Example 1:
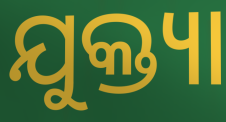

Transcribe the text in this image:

ଯୁକ୍ତ୍ୟା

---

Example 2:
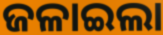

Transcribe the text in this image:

ଜଳାଇଲା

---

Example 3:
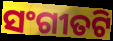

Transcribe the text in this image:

ସଂଗୀତଟି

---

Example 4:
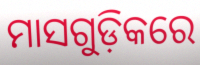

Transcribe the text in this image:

ମାସଗୁଡ଼ିକରେ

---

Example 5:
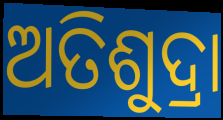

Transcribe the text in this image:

ଅତିଶୁଦ୍ରା